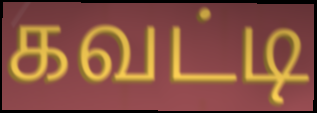
கவட்டி